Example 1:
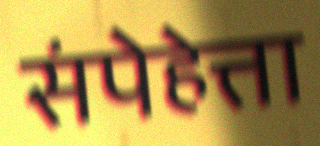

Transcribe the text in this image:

संपेहेत्ता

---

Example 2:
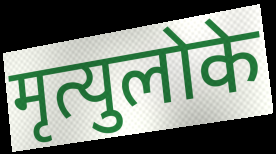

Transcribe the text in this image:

मृत्युलोके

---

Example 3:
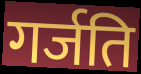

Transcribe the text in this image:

गर्जति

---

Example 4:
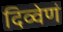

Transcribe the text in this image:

दिव्वेणं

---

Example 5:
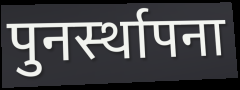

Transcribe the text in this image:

पुनर्स्थापना